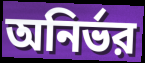
অনির্ভর